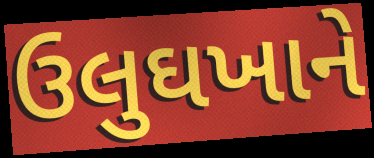
ઉલુઘખાને